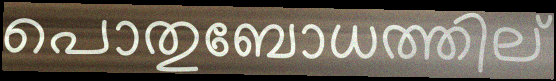
പൊതുബോധത്തില്